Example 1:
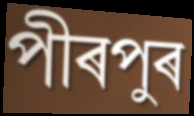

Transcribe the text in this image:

পীৰপুৰ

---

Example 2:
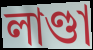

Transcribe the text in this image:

লাণ্ডা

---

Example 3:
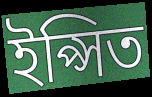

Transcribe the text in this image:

ইপ্সিত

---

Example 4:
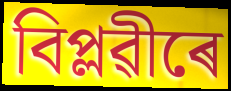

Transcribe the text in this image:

বিপ্লৱীৰে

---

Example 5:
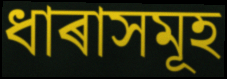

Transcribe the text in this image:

ধাৰাসমূহ